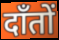
दाँतों